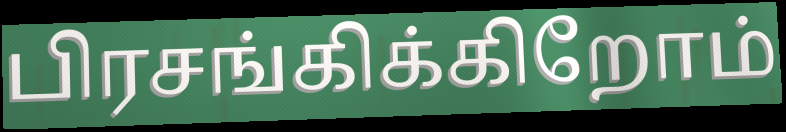
பிரசங்கிக்கிறோம்